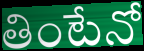
తింటేనో